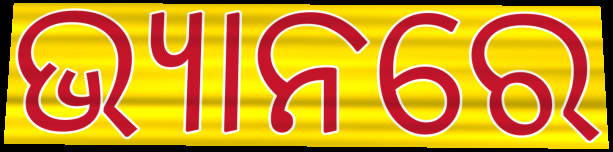
ଭ୍ୟାନରେ